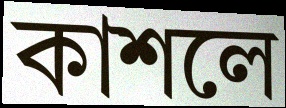
কাশলে